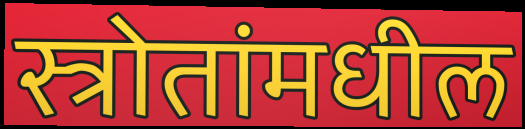
स्त्रोतांमधील